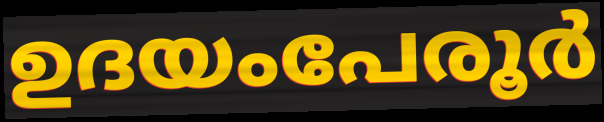
ഉദയംപേരൂർ